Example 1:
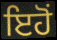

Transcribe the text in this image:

ਇਹੋਂ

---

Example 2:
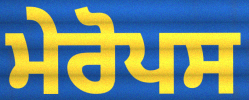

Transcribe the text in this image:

ਮੇਰੋਪਸ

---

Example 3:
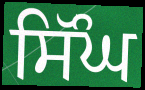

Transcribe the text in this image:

ਸਿੱੰਘ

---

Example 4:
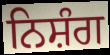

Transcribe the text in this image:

ਨਿਸ਼ੰਗ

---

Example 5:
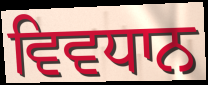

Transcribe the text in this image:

ਵਿਵਧਾਨ